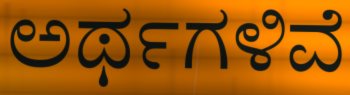
ಅರ್ಥಗಳಿವೆ